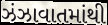
ઝંઝાવાતમાંથી